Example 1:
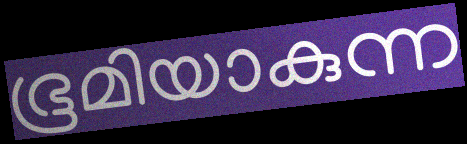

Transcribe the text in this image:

ഭൂമിയാകുന്ന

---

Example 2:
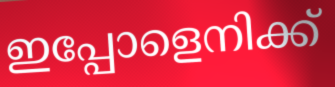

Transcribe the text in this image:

ഇപ്പോളെനിക്ക്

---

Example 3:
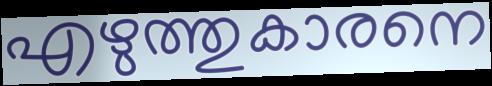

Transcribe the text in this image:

എഴുത്തുകാരനെ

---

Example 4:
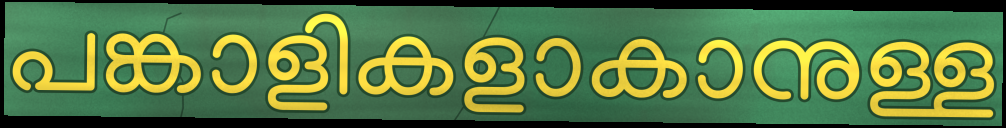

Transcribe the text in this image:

പങ്കാളികളാകാനുള്ള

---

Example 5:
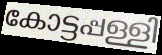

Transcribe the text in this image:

കോട്ടപ്പള്ളി